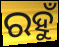
ରହୁଁ